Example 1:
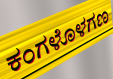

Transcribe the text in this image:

ಕಂಗಳೊಳಗಣ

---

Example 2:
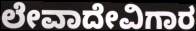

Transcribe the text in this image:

ಲೇವಾದೇವಿಗಾರ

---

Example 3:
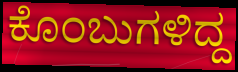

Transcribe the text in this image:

ಕೊಂಬುಗಳಿದ್ದ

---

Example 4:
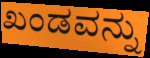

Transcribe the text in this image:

ಖಂಡವನ್ನು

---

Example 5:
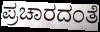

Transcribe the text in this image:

ಪ್ರಚಾರದಂತೆ